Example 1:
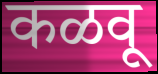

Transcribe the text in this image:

कळवू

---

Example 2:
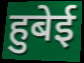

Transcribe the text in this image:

हुबेई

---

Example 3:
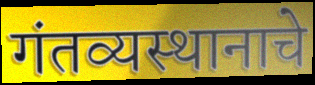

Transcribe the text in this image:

गंतव्यस्थानाचे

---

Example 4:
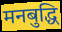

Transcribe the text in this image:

मनबुद्धि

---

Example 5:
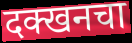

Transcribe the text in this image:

दक्खनचा